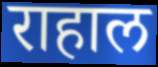
राहाल